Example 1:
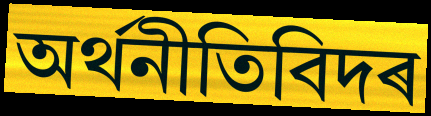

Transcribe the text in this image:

অৰ্থনীতিবিদৰ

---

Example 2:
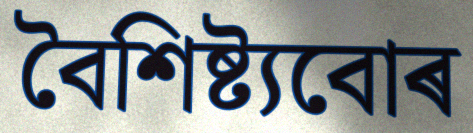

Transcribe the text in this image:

বৈশিষ্ট্যবোৰ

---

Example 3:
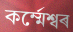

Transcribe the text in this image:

কৰ্ম্মেশ্বৰ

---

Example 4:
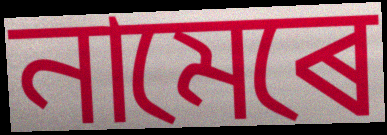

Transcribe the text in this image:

নামেৰে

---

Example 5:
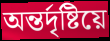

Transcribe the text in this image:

অন্তৰ্দৃষ্টিয়ে